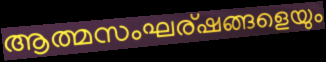
ആത്മസംഘര്ഷങ്ങളെയും